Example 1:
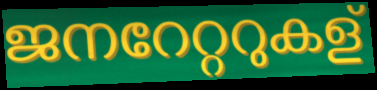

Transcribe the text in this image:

ജനറേറ്ററുകള്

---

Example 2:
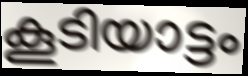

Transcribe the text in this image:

കൂടിയാട്ടം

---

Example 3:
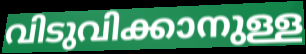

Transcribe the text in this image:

വിടുവിക്കാനുള്ള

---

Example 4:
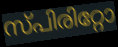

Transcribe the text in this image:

സ്പിരിറ്റോ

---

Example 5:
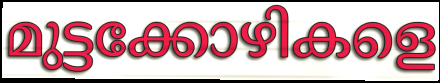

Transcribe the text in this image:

മുട്ടക്കോഴികളെ